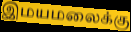
இமயமலைக்கு